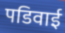
पडिवाई